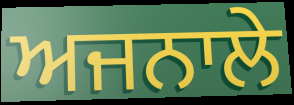
ਅਜਨਾਲੇ